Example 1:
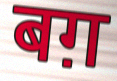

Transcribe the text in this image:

बग़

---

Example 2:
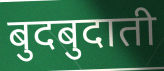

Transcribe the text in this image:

बुदबुदाती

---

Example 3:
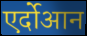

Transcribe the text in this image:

एर्दोआन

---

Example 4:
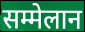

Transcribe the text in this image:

सम्मेलान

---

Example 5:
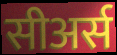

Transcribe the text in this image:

सीअर्स